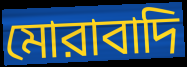
মোরাবাদি